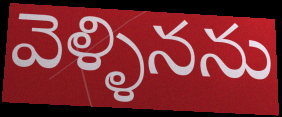
వెళ్ళినను